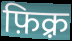
फ़िक़्र